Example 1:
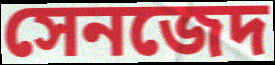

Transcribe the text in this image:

সেনজেদ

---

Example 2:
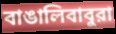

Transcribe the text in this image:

বাঙালিবাবুরা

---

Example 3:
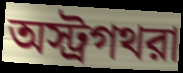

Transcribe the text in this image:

অস্ট্রগথরা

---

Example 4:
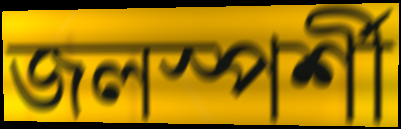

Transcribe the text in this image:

জলস্পর্শী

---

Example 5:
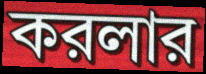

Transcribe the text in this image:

করলার